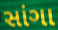
સાંગા